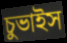
চুভাইস